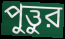
পুত্তুর